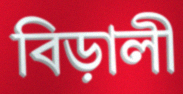
বিড়ালী